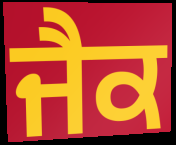
ਜੈਕ